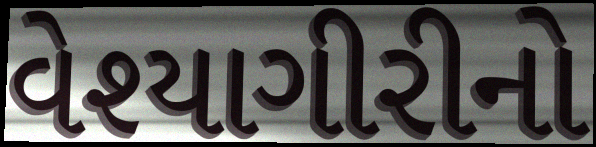
વેશ્યાગીરીનો